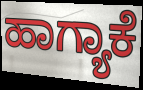
ಹಾಗ್ಯಾಕೆ